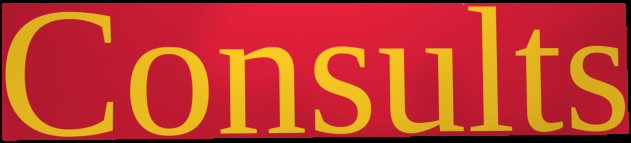
Consults